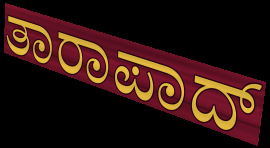
ತಾರಾಪಾದ್